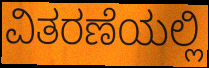
ವಿತರಣೆಯಲ್ಲಿ